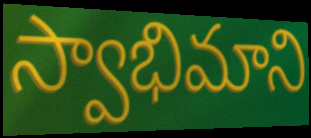
స్వాభిమాని